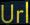
Url